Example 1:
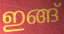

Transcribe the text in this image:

ഇങ്ങ്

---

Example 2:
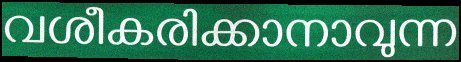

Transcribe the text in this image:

വശീകരിക്കാനാവുന്ന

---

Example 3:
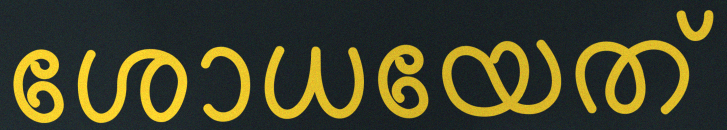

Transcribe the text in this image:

ശോധയേത്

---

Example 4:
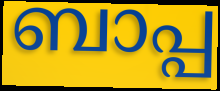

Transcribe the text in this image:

ബാപ്പ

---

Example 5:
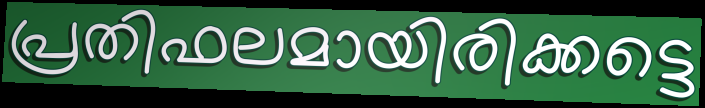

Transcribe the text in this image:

പ്രതിഫലമായിരിക്കട്ടെ